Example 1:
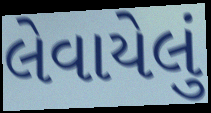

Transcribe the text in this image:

લેવાયેલું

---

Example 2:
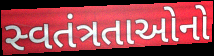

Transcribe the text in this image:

સ્વતંત્રતાઓનો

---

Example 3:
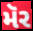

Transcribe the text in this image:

મૅર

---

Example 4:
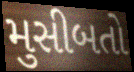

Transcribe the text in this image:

મુસીબતો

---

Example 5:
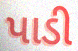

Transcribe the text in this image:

પાડી